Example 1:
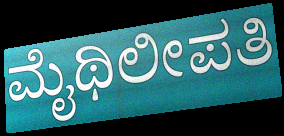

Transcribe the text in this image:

ಮೈಥಿಲೀಪತಿ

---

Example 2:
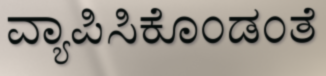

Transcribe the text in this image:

ವ್ಯಾಪಿಸಿಕೊಂಡಂತೆ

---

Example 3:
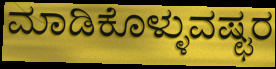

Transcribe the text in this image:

ಮಾಡಿಕೊಳ್ಳುವಷ್ಟರ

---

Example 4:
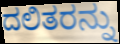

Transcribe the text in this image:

ದಲಿತರನ್ನು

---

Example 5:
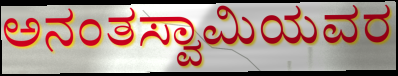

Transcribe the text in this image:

ಅನಂತಸ್ವಾಮಿಯವರ